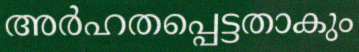
അർഹതപ്പെട്ടതാകും